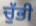
ਚੁੱਭੀ